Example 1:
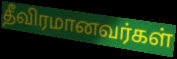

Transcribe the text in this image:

தீவிரமானவர்கள்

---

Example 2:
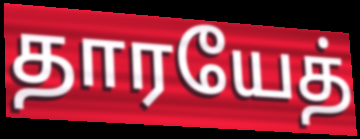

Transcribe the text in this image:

தாரயேத்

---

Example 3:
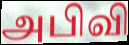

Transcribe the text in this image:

அபிவி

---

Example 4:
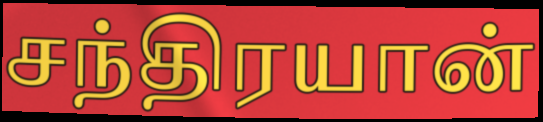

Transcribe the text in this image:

சந்திரயான்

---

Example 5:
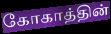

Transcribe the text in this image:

கோகாத்தின்